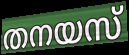
തനയസ്